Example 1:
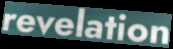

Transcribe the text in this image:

revelation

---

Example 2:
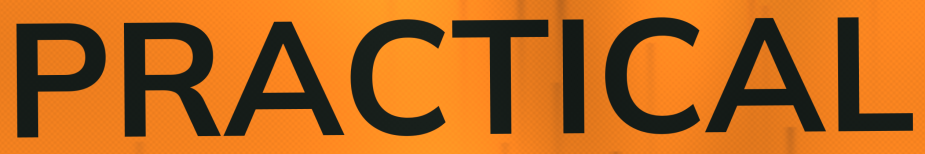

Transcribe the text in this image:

PRACTICAL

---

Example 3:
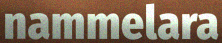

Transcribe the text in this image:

nammelara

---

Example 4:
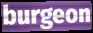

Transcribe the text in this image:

burgeon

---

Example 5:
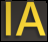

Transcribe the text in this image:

IA